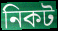
নিকট